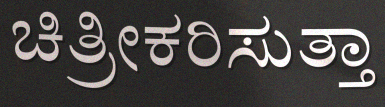
ಚಿತ್ರೀಕರಿಸುತ್ತಾ